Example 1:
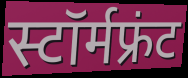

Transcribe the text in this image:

स्टॉर्मफ्रंट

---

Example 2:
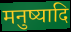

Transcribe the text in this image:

मनुष्यादि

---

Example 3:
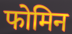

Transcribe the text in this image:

फोमिन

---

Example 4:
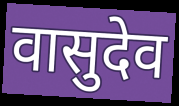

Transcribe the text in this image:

वासुदेव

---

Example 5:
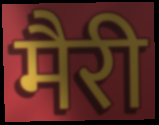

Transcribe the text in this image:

मैरी